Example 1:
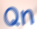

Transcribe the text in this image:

Qn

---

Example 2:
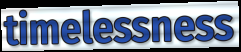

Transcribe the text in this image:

timelessness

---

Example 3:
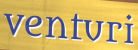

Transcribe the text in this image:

venturi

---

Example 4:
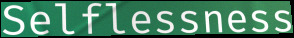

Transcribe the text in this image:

Selflessness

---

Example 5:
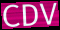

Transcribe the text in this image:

CDV